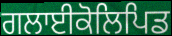
ਗਲਾਈਕੋਲਿਪਿਡ